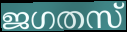
ജഗതസ്